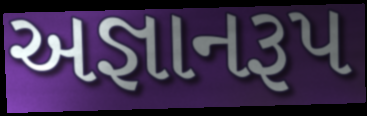
અજ્ઞાનરૂપ